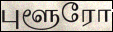
புளூரோ